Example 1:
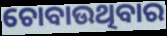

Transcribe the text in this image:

ଚୋବାଉଥିବାର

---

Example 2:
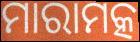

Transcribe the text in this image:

ମାରାମତ୍କ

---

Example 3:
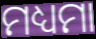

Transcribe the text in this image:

ମଧ୍ୟମା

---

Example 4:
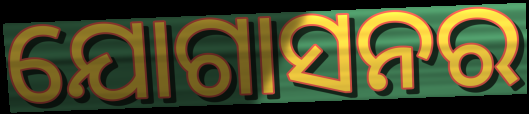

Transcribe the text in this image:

ଯୋଗାସନର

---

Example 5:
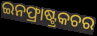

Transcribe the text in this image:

ଇନଫ୍ରାଷ୍ଟ୍ରକଚର